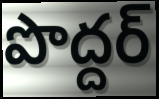
పొద్దర్